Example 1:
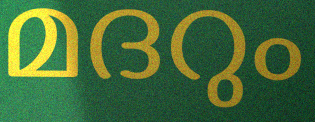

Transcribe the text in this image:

മദറും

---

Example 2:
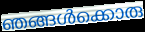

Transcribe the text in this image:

ഞങ്ങൾക്കൊരു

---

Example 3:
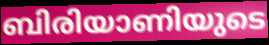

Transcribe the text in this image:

ബിരിയാണിയുടെ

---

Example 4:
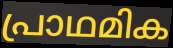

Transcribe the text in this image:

പ്രാഥമിക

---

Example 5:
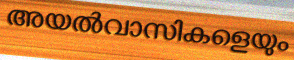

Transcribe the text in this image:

അയൽവാസികളെയും